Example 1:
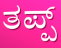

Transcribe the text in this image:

ತಪ್ಪ್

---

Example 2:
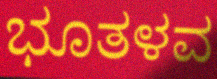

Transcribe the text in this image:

ಭೂತಳವ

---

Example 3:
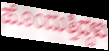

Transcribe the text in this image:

ಹೊಂದುತ್ತಿದ್ದಳು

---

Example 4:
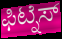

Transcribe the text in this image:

ಫಿಟ್ನೆಸ್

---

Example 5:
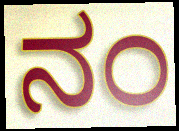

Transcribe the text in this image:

ನಂ